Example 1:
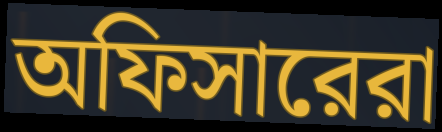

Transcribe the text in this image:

অফিসারেরা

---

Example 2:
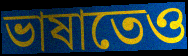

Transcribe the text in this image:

ভাষাতেও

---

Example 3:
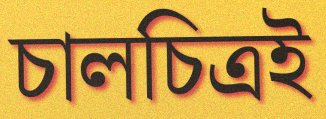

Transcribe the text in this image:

চালচিত্রই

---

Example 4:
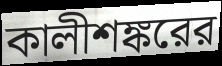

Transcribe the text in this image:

কালীশঙ্করের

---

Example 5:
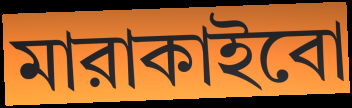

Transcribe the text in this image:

মারাকাইবো